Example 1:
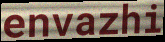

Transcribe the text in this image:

envazhi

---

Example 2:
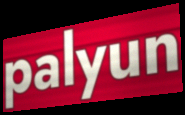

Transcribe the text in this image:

palyun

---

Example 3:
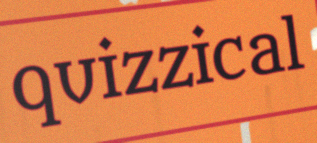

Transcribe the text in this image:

quizzical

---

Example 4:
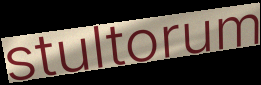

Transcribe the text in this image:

stultorum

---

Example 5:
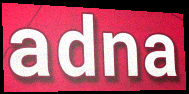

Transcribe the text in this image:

adna